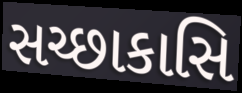
સચ્છાકાસિ